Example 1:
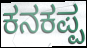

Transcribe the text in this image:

ಕನಕಪ್ಪ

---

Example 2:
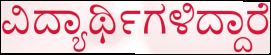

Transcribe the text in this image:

ವಿದ್ಯಾರ್ಥಿಗಳಿದ್ದಾರೆ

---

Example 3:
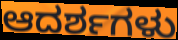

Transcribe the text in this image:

ಆದರ್ಶಗಳು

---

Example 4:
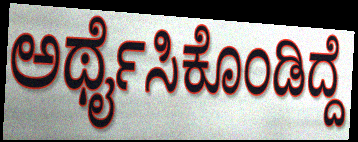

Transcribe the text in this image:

ಅರ್ಥೈಸಿಕೊಂಡಿದ್ದೆ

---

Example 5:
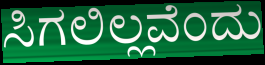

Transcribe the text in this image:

ಸಿಗಲಿಲ್ಲವೆಂದು